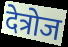
देत्रोज